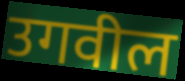
उगवील